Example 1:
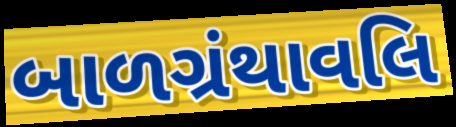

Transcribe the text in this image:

બાળગ્રંથાવલિ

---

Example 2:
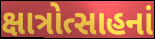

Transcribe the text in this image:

ક્ષાત્રોત્સાહનાં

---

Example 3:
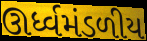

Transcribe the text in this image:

ઊર્ધ્વમંડળીય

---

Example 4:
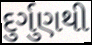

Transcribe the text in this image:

દુર્ગુણથી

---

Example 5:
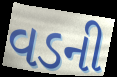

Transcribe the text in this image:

વડની